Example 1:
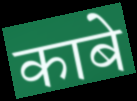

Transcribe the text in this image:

काबे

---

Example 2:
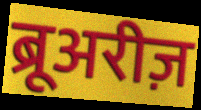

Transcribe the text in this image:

ब्रूअरीज़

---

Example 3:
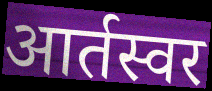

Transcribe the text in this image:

आर्तस्वर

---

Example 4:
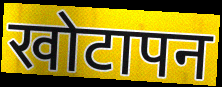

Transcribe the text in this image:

खोटापन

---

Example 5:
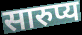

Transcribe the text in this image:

सारुप्य